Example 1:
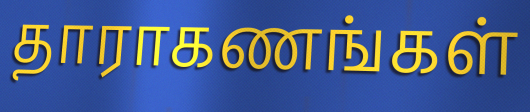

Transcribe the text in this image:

தாராகணங்கள்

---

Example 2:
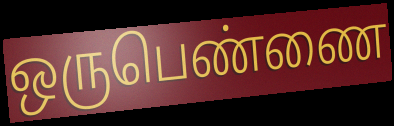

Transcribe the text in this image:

ஒருபெண்ணை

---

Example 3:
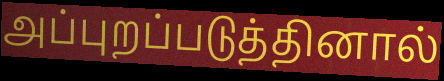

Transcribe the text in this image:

அப்புறப்படுத்தினால்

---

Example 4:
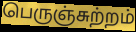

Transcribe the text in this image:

பெருஞ்சுற்றம்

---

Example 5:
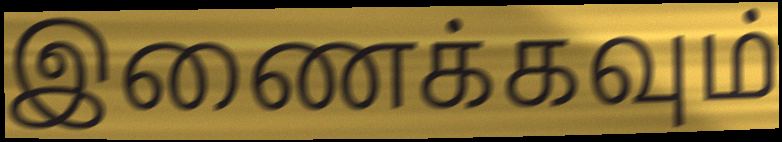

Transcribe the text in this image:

இணைக்கவும்